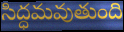
సిద్ధమవుతుంది